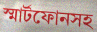
স্মার্টফোনসহ